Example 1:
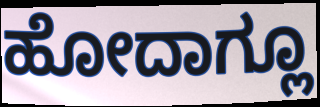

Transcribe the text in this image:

ಹೋದಾಗ್ಲೂ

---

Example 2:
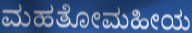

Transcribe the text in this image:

ಮಹತೋಮಹೀಯ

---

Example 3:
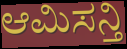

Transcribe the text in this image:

ಆಮಿಸನ್ತಿ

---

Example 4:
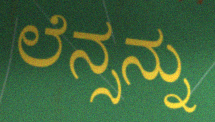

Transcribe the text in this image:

ಲೆನ್ಸನ್ನು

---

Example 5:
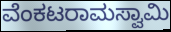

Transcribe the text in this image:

ವೆಂಕಟರಾಮಸ್ವಾಮಿ